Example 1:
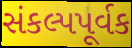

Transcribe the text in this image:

સંકલ્પપૂર્વક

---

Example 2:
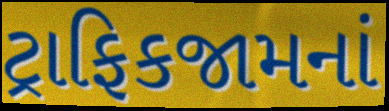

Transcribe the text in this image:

ટ્રાફિકજામનાં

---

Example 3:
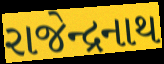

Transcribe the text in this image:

રાજેન્દ્રનાથ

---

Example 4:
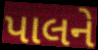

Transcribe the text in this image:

પાલને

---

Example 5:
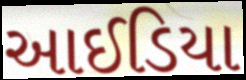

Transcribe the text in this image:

આઈડિયા